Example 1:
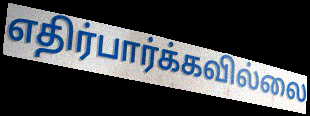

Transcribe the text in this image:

எதிர்பார்க்கவில்லை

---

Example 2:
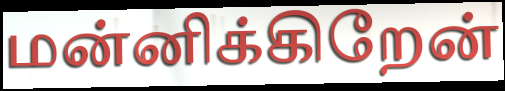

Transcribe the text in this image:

மன்னிக்கிறேன்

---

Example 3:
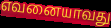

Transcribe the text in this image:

எவனையாவது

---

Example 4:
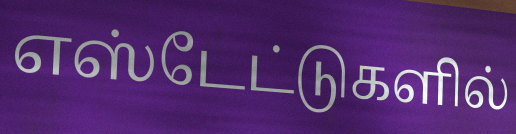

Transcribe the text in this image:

எஸ்டேட்டுகளில்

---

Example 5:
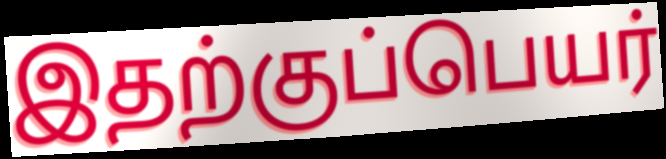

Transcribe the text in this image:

இதற்குப்பெயர்